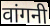
वांगनी